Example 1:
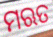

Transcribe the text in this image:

ମଋତ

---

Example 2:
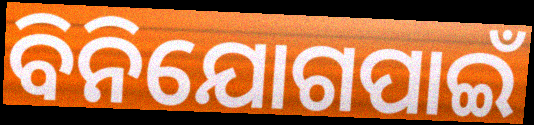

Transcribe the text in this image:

ବିନିଯୋଗପାଇଁ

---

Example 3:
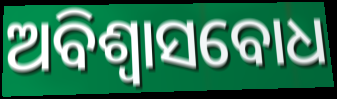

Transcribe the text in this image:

ଅବିଶ୍ୱାସବୋଧ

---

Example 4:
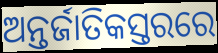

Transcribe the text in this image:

ଅନ୍ତର୍ଜାତିକସ୍ତରରେ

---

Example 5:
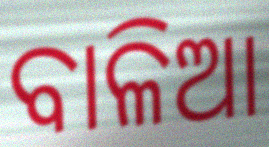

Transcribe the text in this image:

ବାଳିଆ